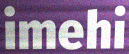
imehi